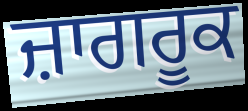
ਜ਼ਾਗਰੂਕ